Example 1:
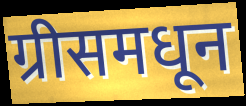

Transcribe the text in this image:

ग्रीसमधून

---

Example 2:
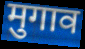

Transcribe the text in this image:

मुगाव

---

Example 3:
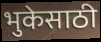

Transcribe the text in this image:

भुकेसाठी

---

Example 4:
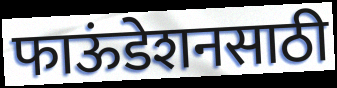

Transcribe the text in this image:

फाऊंडेशनसाठी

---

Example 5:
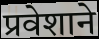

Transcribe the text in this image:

प्रवेशाने